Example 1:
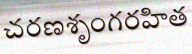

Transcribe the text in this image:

చరణశృంగరహిత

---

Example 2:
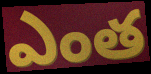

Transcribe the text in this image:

ఎంత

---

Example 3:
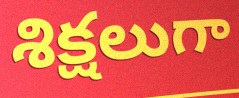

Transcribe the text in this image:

శిక్షలుగా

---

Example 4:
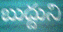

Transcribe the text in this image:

బుద్దుని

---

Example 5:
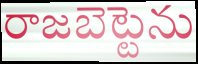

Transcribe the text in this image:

రాజబెట్టెను